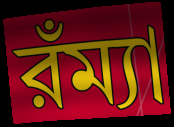
রঁম্যা